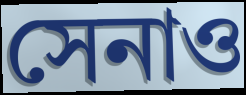
সেনাও